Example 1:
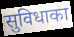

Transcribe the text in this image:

सुविधाका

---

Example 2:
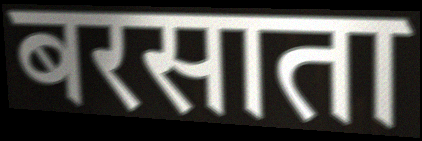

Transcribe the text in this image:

बरसाता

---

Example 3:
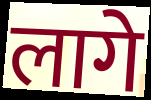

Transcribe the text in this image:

लागे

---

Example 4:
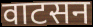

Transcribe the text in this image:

वाटसन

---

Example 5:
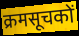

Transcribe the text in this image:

क्रमसूचकों